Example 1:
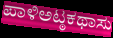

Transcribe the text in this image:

ಪಾಳಿಅಟ್ಠಕಥಾಸು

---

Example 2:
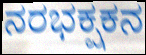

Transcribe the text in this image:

ನರಭಕ್ಷಕನ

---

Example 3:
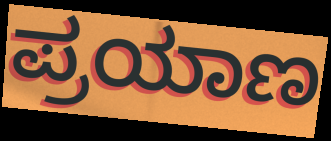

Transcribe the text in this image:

ಪ್ರಯಾಣ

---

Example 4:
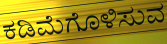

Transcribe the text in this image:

ಕಡಿಮೆಗೊಳಿಸುವ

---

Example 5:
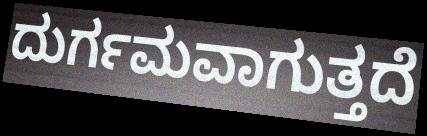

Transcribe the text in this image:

ದುರ್ಗಮವಾಗುತ್ತದೆ